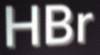
HBr